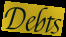
Debts